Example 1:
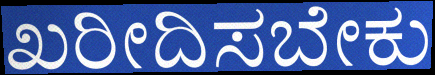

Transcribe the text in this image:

ಖರೀದಿಸಬೇಕು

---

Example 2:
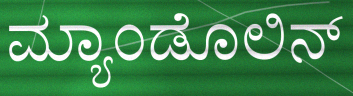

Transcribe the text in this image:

ಮ್ಯಾಂಡೊಲಿನ್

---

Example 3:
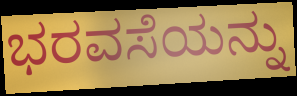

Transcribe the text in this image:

ಭರವಸೆಯನ್ನು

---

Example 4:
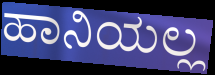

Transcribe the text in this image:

ಹಾನಿಯಲ್ಲ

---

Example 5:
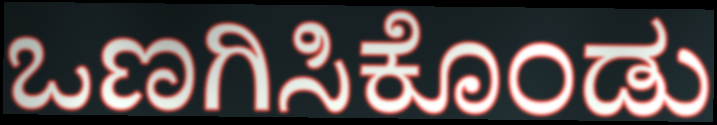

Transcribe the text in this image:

ಒಣಗಿಸಿಕೊಂಡು